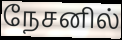
நேசனில்